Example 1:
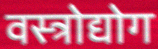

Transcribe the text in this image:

वस्त्रोद्योग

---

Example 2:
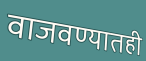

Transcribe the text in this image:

वाजवण्यातही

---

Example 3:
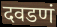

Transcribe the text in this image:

दवडणं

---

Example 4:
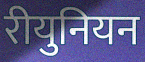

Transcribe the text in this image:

रीयुनियन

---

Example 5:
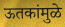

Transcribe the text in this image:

ऊतकांमुळे